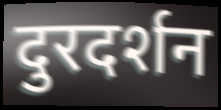
दुरदर्शन